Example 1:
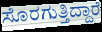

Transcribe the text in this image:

ಸೊರಗುತ್ತಿದ್ದಾರೆ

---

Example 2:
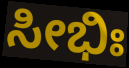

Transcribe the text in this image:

ಸೀಭಿಃ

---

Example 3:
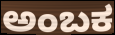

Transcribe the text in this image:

ಅಂಬಕ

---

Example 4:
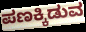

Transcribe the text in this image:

ಪಣಕ್ಕಿಡುವ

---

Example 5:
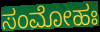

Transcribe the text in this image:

ಸಂಮೋಹಃ